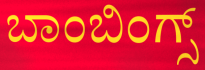
ಬಾಂಬಿಂಗ್ಸ್